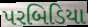
પરબિડિયા